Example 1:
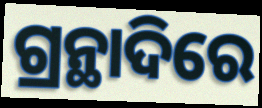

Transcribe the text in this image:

ଗ୍ରନ୍ଥାଦିରେ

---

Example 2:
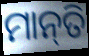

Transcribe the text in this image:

ମାନ୍‌ତି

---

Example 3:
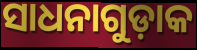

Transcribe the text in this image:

ସାଧନାଗୁଡ଼ାକ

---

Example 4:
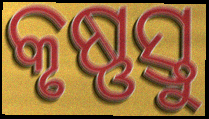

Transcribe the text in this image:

କୃଷ୍ଣସ୍ତୁ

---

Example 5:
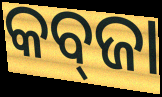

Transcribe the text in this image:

କବ୍‍ଜା